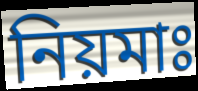
নিয়মাঃ